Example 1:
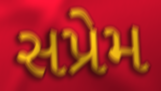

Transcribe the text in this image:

સપ્રેમ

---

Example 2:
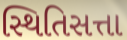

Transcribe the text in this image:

સ્થિતિસત્તા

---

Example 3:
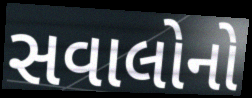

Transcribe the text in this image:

સવાલોનો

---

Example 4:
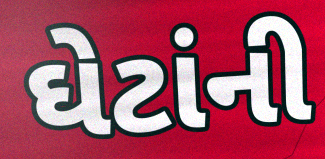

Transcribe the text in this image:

ઘેટાંની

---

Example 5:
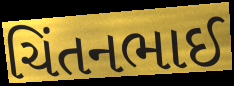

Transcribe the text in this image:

ચિંતનભાઈ